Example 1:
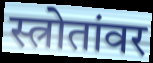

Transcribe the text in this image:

स्त्रोतांवर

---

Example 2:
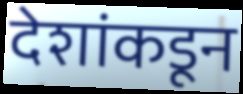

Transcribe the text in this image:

देशांकडून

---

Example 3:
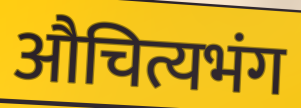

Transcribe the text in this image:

औचित्यभंग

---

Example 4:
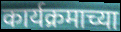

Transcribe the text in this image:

कार्यक्रमाच्या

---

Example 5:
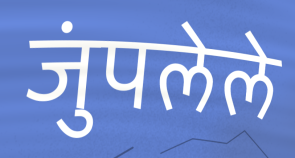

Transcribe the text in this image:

जुंपलेले